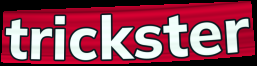
trickster